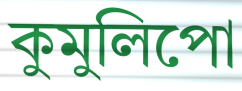
কুমুলিপো